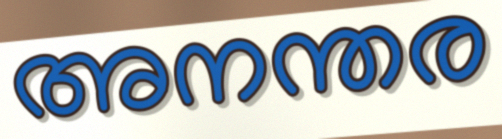
അനന്തര